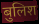
बुलिश